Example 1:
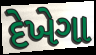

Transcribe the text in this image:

દેખેગા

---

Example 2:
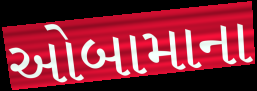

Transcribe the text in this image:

ઓબામાના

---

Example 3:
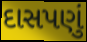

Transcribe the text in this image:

દાસપણું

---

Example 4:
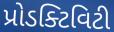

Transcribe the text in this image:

પ્રોડક્ટિવિટી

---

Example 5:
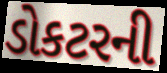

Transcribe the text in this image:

ડોકટરની